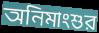
অনিমাংশুর